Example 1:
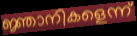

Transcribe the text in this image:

ജ്ഞാനികളെന്ന്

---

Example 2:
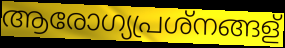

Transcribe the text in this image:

ആരോഗ്യപ്രശ്നങ്ങള്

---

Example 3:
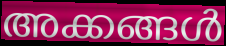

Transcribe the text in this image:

അക്കങ്ങൾ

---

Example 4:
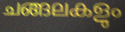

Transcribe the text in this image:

ചങ്ങലകളും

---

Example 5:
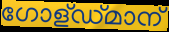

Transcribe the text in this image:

ഗോള്ഡ്മാന്